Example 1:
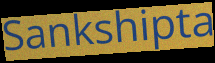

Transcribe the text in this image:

Sankshipta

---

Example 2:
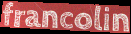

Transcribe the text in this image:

francolin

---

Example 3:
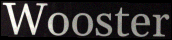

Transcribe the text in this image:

Wooster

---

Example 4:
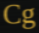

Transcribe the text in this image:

Cg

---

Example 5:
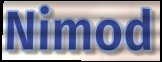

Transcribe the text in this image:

Nimod